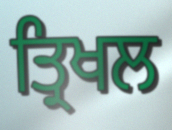
ਤ੍ਰਿਖਲ